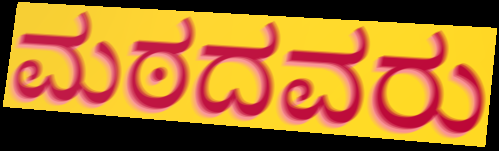
ಮಠದವರು